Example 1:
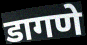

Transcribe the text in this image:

डागणे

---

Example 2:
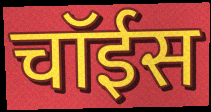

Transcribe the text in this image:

चॉईस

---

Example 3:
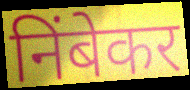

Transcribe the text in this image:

निंबेकर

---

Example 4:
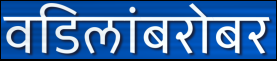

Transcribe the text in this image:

वडिलांबरोबर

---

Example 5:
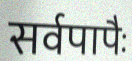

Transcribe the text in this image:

सर्वपापैः